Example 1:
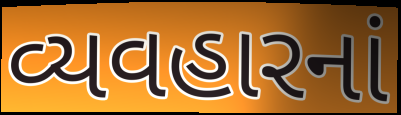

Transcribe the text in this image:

વ્યવહારનાં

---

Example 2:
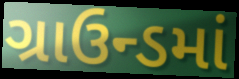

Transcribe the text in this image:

ગ્રાઉન્ડમાં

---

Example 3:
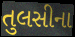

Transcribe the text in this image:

તુલસીના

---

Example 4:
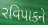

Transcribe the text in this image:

રવિપાકને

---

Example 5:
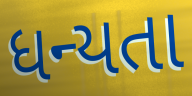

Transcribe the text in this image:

ધન્યતા